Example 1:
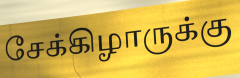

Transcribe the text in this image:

சேக்கிழாருக்கு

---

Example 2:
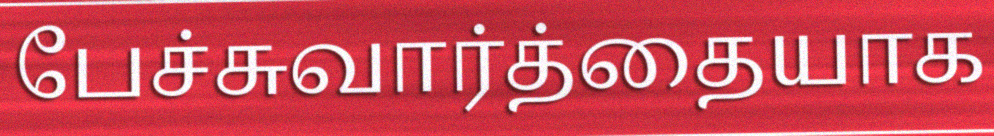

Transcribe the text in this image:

பேச்சுவார்த்தையாக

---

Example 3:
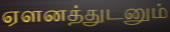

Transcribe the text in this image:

ஏளனத்துடனும்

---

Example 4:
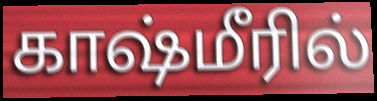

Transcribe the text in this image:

காஷ்மீரில்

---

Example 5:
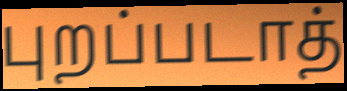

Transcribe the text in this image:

புறப்படாத்